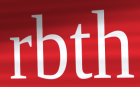
rbth